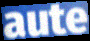
aute